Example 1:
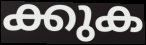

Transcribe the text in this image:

ക്കുക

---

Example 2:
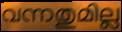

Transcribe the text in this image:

വന്നതുമില്ല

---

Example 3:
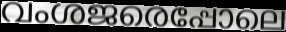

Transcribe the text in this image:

വംശജരെപ്പോലെ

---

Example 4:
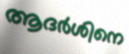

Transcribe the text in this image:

ആദർശിനെ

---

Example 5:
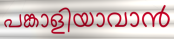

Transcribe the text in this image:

പങ്കാളിയാവാൻ